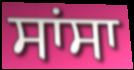
ਸਾਂਸਾ